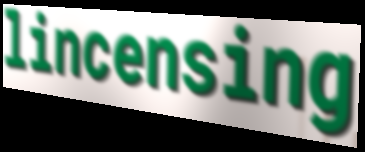
lincensing